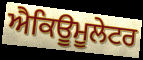
ਐਕਿਊਮੂਲੇਟਰ